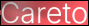
Careto